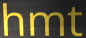
hmt